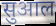
सुआल